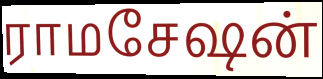
ராமசேஷன்